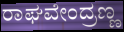
ರಾಘವೇಂದ್ರಣ್ಣ